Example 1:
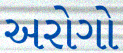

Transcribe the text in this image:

અરોગો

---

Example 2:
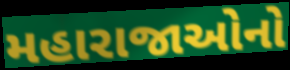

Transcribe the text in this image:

મહારાજાઓનો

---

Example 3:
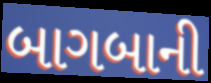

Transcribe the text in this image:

બાગબાની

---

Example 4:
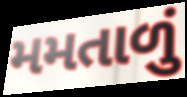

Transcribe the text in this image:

મમતાળું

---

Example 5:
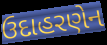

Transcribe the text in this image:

ઉદાહરણેન